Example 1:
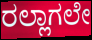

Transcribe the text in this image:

ರಲ್ಲಾಗಲೇ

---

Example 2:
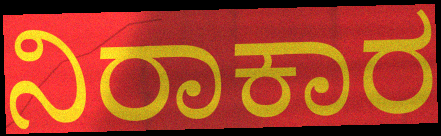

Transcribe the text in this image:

ನಿರಾಕಾರ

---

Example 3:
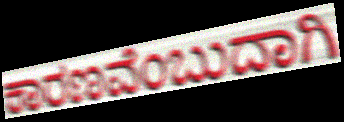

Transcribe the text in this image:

ಕಾರಣವೆಂಬುದಾಗಿ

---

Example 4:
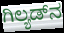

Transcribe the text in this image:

ಗಿಲ್ಯಡ್‌ನ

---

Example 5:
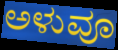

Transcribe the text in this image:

ಅಳುವೂ